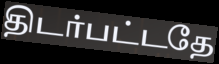
திடர்பட்டதே